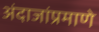
अंदाजांप्रमाणे